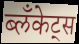
ब्लॅंकेट्स